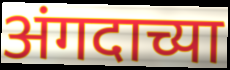
अंगदाच्या